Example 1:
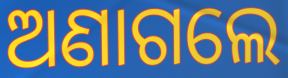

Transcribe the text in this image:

ଅଣାଗଲେ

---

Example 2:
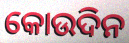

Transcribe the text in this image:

କୋଉଦିନ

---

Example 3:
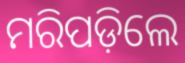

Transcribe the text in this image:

ମରିପଡ଼ିଲେ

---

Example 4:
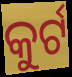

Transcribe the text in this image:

କୁର୍ଟ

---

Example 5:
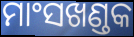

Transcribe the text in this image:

ମାଂସଖଣ୍ଡକ